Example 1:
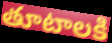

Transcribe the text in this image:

తూటాలకి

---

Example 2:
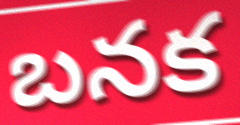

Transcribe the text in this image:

బనక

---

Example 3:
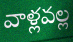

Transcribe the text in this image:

వాళ్లవల్ల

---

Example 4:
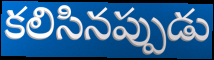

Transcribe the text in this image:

కలిసినప్పుడు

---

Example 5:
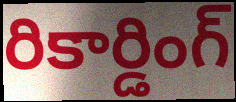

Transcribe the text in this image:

రికార్డింగ్